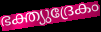
ഭക്ത്യുദ്രേകം